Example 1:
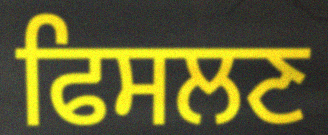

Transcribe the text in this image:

ਫਿਸਲਣ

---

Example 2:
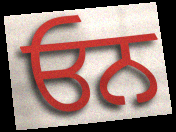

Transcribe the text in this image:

ਓਨ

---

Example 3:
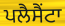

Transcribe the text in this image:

ਪਲੈਸੈਂਟਾ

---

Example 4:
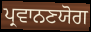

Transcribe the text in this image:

ਪ੍ਰਵਾਨਣਯੋਗ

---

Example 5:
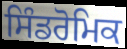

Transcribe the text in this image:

ਸਿੰਡਰੋਮਿਕ